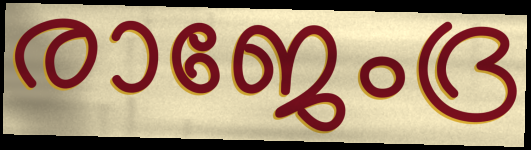
രാജേംദ്ര